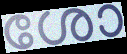
ശോ